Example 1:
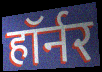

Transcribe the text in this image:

हॉर्नर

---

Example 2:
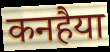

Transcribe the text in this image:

कनहैया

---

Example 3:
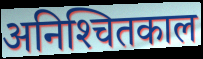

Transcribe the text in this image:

अनिश्‍चितकाल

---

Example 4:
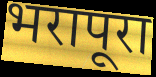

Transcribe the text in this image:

भरापूरा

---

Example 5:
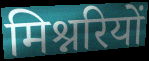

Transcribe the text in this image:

मिश्नरियों